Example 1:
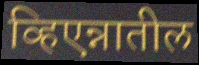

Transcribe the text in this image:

व्हिएन्नातील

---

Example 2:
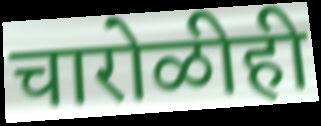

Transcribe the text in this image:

चारोळीही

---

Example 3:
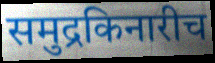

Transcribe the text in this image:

समुद्रकिनारीच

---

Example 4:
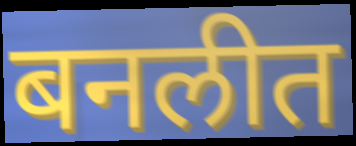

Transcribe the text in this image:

बनलीत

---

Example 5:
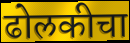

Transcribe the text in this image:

ढोलकीचा